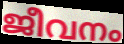
ജീവനം